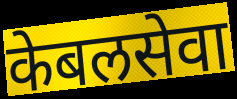
केबलसेवा